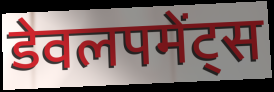
डेवलपमेंट्स